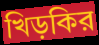
খিড়কির